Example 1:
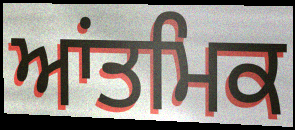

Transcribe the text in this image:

ਆਂਤਮਿਕ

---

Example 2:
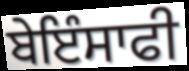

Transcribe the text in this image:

ਬੇਇੰਸਾਫੀ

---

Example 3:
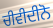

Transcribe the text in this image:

ਚੀਵੀਦੀਨੋ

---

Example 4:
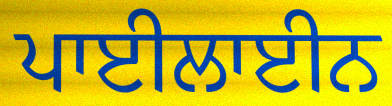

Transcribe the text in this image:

ਪਾਈਲਾਈਨ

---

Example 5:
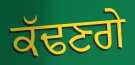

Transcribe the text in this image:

ਕੱਢਣਗੇ